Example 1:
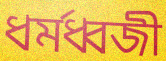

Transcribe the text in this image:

ধর্মধ্বজী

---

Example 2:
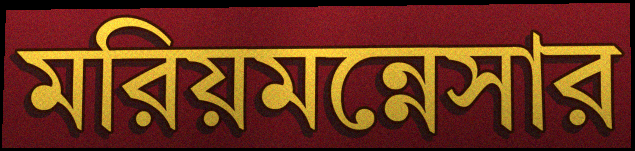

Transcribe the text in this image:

মরিয়মন্নেসার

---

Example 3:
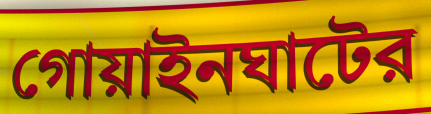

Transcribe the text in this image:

গোয়াইনঘাটের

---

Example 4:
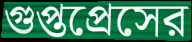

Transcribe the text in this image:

গুপ্তপ্রেসের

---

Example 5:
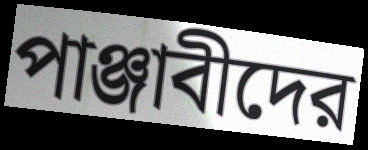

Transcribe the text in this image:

পাঞ্জাবীদের